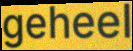
geheel